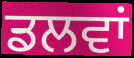
ਡਲਵਾਂ